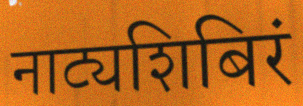
नाट्यशिबिरं